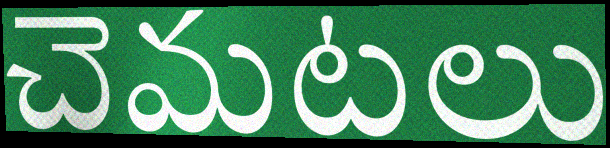
చెమటలు